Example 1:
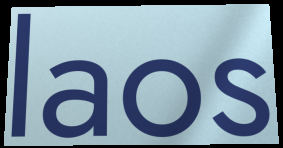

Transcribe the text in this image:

laos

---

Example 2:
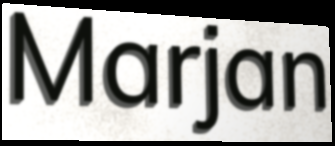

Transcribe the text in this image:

Marjan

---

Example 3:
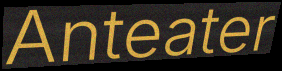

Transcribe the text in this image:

Anteater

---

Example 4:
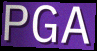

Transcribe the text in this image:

PGA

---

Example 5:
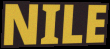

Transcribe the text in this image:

NILE